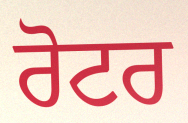
ਰੋਟਰ